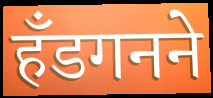
हँडगनने